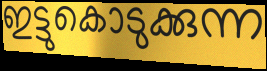
ഇട്ടുകൊടുക്കുന്ന